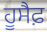
ਹੂਸੈਫ਼